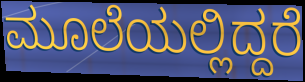
ಮೂಲೆಯಲ್ಲಿದ್ದರೆ